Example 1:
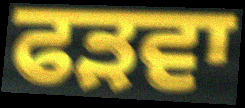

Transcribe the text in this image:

ਫੜਵਾ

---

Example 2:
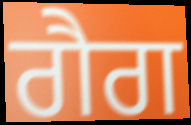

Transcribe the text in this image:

ਗੈਗ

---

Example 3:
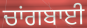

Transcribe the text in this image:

ਚਾਂਗਬਾਈ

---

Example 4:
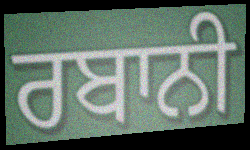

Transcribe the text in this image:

ਰਬਾਨੀ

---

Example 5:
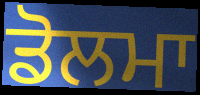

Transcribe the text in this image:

ਡੋਲਮਾ